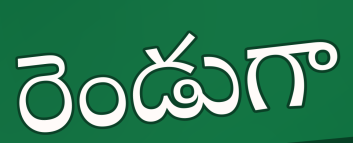
రెండుగా